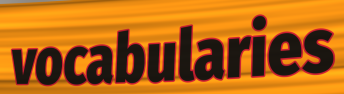
vocabularies